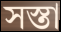
সস্তা